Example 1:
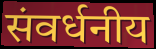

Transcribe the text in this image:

संवर्धनीय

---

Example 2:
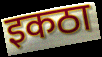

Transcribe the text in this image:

इकठा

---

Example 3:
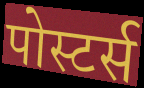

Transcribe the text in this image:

पोस्टर्स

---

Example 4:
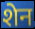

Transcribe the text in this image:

शेन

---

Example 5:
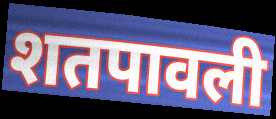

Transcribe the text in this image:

शतपावली